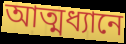
আত্মধ্যানে